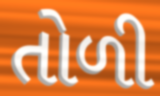
તોળી